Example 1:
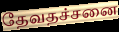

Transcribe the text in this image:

தேவதச்சனை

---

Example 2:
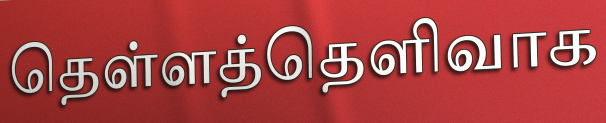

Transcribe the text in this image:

தெள்ளத்தெளிவாக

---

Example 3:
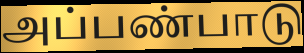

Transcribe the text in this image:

அப்பண்பாடு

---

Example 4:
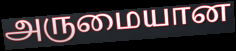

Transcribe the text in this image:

அருமையான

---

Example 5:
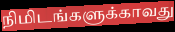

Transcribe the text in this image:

நிமிடங்களுக்காவது